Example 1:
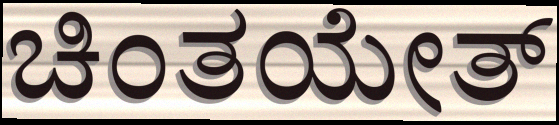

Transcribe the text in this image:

ಚಿಂತಯೇತ್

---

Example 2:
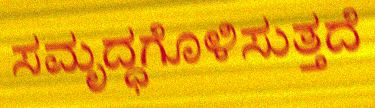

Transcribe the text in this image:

ಸಮೃದ್ಧಗೊಳಿಸುತ್ತದೆ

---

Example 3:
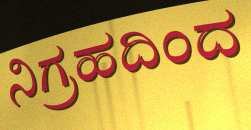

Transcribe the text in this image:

ನಿಗ್ರಹದಿಂದ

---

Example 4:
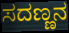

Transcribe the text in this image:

ಸದಣ್ಣನ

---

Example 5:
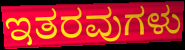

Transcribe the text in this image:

ಇತರವುಗಳು